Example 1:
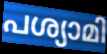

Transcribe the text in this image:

പശ്യാമി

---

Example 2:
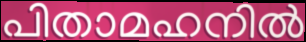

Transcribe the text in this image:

പിതാമഹനിൽ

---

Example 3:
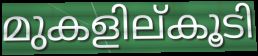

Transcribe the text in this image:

മുകളില്കൂടി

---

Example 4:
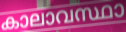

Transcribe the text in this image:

കാലാവസ്ഥാ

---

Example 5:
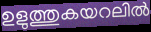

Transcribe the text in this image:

ഉളുത്തുകയറലിൽ